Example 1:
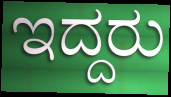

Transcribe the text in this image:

ಇದ್ದರು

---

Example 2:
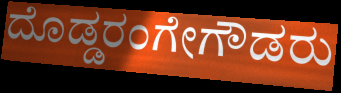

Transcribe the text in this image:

ದೊಡ್ಡರಂಗೇಗೌಡರು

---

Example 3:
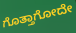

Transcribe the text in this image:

ಗೊತ್ತಾಗೋದೇ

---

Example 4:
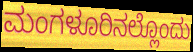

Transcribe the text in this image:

ಮಂಗಳೂರಿನಲ್ಲೊಂದು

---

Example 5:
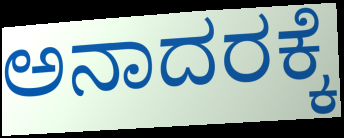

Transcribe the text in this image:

ಅನಾದರಕ್ಕೆ